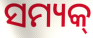
ସମ୍ୟକ୍